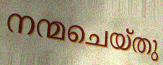
നന്മചെയ്തു